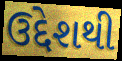
ઉદ્દેશથી